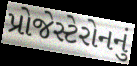
પ્રોજેસ્ટેરોનનું